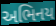
અભિનય